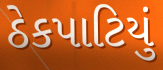
ઠેકપાટિયું